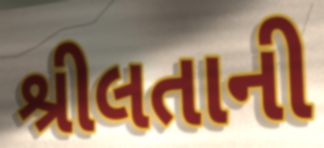
શ્રીલતાની